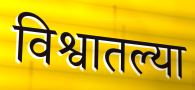
विश्वातल्या